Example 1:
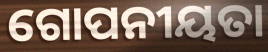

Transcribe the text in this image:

ଗୋପନୀୟତା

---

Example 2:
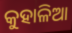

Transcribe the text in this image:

କୁହାଳିଆ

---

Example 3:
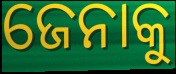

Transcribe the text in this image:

ଜେନାକୁ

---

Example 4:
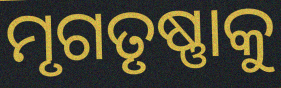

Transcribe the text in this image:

ମୃଗତୃଷ୍ଣାକୁ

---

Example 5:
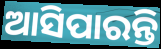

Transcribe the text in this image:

ଆସିପାରନ୍ତି